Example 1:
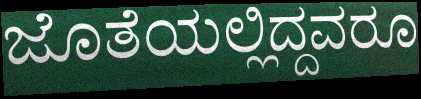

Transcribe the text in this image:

ಜೊತೆಯಲ್ಲಿದ್ದವರೂ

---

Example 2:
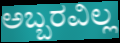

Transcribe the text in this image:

ಅಬ್ಬರವಿಲ್ಲ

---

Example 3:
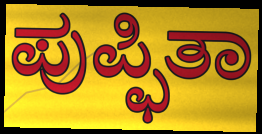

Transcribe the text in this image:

ಪುಪ್ಫಿತಾ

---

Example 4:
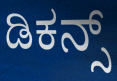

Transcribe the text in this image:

ಡಿಕನ್ಸ್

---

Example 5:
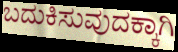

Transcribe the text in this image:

ಬದುಕಿಸುವುದಕ್ಕಾಗಿ